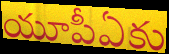
యూపీఏకు